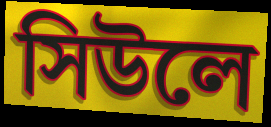
সিউলে